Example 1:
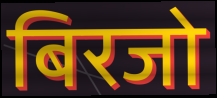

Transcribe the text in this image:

बिरजो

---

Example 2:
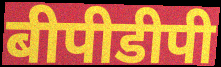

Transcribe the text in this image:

बीपीडीपी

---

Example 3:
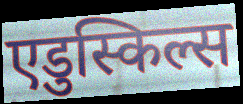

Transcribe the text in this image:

एडुस्किल्स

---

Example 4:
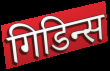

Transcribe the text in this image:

गिडिन्स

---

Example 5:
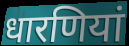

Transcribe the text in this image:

धारणियां